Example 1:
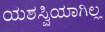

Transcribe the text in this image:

ಯಶಸ್ವಿಯಾಗಿಲ್ಲ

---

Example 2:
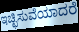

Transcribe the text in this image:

ಇಚ್ಛಿಸುವೆಯಾದರೆ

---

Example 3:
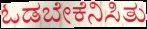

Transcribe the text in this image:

ಓಡಬೇಕೆನಿಸಿತು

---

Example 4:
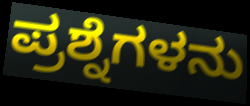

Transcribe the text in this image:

ಪ್ರಶ್ನೆಗಳನು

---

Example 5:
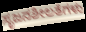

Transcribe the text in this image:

ಸೃಜನಶೀಲತೆಗಳು